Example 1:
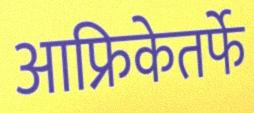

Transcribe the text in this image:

आफ्रिकेतर्फे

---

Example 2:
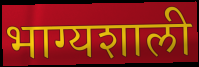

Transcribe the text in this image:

भाग्यशाली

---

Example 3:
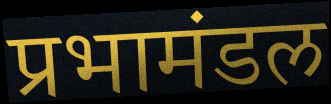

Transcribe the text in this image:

प्रभामंडल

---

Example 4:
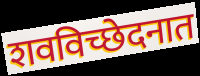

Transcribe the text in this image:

शवविच्छेदनात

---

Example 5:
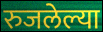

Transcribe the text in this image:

रुजलेल्या